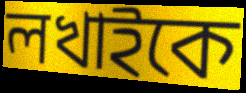
লখাইকে